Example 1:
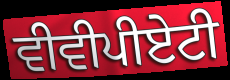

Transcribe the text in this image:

ਵੀਵੀਪੀਏਟੀ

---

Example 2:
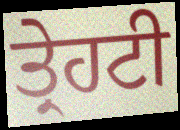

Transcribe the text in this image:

ਤ੍ਰੇਹਟੀ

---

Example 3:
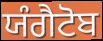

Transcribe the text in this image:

ਯੰਗੈਟੋਬ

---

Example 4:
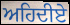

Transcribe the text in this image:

ਅਹਿਦੀਏ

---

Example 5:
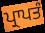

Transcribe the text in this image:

ਪ੍ਰਾਪਤੰ